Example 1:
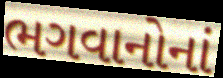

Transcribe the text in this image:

ભગવાનોનાં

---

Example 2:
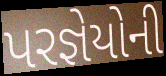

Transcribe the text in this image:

પરજ્ઞેયોની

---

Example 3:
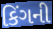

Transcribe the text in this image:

કિંગની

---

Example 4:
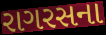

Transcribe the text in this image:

રાગરસના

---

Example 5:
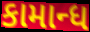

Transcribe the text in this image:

કામાન્ધ